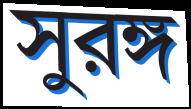
সুরঙ্গ